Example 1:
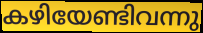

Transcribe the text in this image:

കഴിയേണ്ടിവന്നു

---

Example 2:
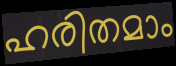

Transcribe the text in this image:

ഹരിതമാം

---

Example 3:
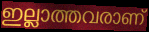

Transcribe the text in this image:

ഇല്ലാത്തവരാണ്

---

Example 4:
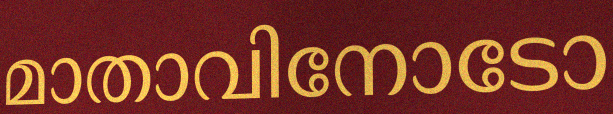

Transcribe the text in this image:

മാതാവിനോടോ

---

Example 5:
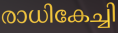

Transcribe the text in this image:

രാധികേച്ചി